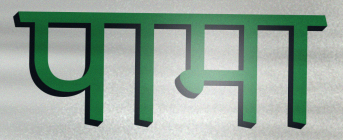
पामा